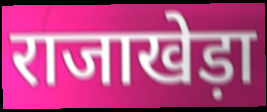
राजाखेड़ा